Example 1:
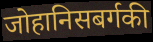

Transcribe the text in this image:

जोहानिसबर्गकी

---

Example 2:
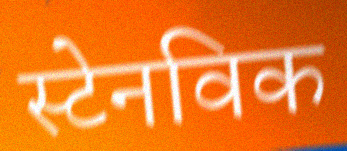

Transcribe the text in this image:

स्टेनविक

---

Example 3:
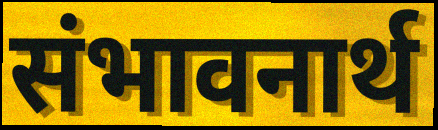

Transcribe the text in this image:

संभावनार्थ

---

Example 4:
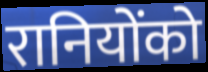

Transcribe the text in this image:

रानियोंको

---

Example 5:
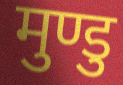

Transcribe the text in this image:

मुण्डु